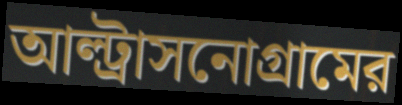
আল্ট্রাসনোগ্রামের